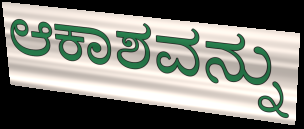
ಆಕಾಶವನ್ನು